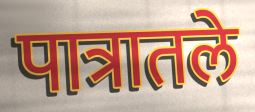
पात्रातले